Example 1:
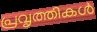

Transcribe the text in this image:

പ്രവൃത്തികൾ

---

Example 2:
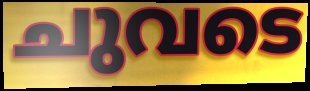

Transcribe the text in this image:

ചുവടെ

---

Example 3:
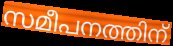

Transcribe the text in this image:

സമീപനത്തിന്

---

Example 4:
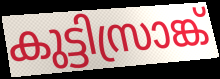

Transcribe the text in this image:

കുട്ടിസ്രാങ്ക്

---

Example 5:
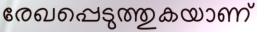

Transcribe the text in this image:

രേഖപ്പെടുത്തുകയാണ്